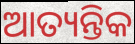
ଆତ୍ୟନ୍ତିକ